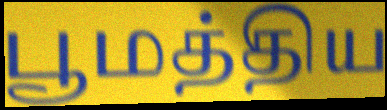
பூமத்திய